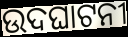
ଉଦଘାଟନୀ